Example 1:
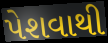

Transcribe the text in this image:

પેશવાથી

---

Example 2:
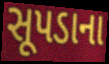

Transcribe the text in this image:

સૂપડાના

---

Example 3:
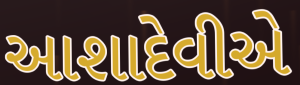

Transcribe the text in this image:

આશાદેવીએ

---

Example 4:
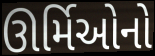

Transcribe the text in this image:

ઊર્મિઓનો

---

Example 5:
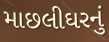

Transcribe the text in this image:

માછલીઘરનું